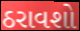
ઠરાવશો